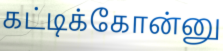
கட்டிக்கோன்னு